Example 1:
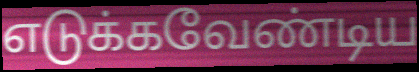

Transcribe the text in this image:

எடுக்கவேண்டிய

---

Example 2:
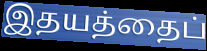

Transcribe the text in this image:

இதயத்தைப்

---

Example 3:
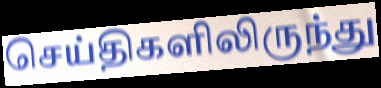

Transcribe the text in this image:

செய்திகளிலிருந்து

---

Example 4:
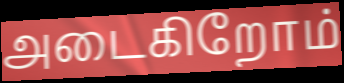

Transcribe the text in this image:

அடைகிறோம்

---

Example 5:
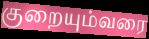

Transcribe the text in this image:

குறையும்வரை